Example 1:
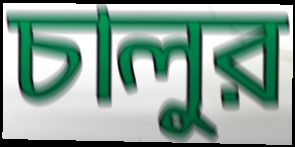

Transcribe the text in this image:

চালুর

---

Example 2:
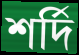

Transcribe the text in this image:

শর্দি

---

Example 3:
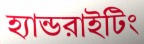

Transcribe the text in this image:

হ্যান্ডরাইটিং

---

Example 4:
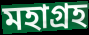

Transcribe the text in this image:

মহাগ্রহ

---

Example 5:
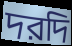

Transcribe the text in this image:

দরদি